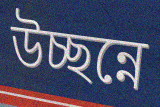
উচ্ছন্নে